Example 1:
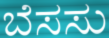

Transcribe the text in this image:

ಬೆಸಸು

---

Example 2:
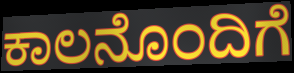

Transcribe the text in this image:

ಕಾಲನೊಂದಿಗೆ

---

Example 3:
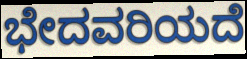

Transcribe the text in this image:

ಭೇದವರಿಯದೆ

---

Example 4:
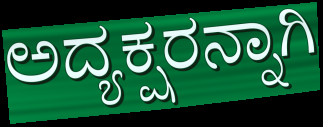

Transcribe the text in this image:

ಅದ್ಯಕ್ಷರನ್ನಾಗಿ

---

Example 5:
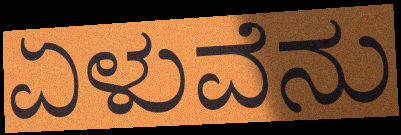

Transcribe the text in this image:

ಏಳುವೆನು